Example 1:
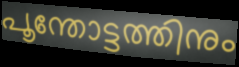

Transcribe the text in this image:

പൂന്തോട്ടത്തിനും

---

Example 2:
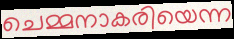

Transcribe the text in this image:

ചെമ്മനാകരിയെന്ന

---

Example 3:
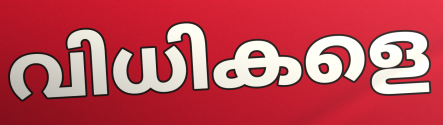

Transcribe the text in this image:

വിധികളെ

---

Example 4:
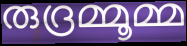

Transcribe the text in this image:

രുദ്രമ്മൂമ്മ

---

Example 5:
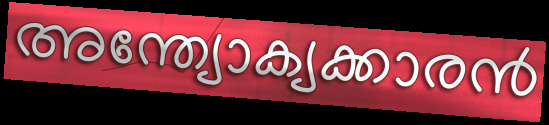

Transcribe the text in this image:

അന്ത്യോക്യക്കാരൻ